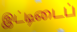
இட்டிடைப்